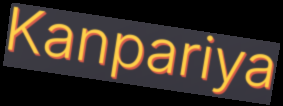
Kanpariya